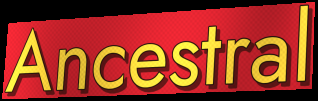
Ancestral